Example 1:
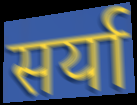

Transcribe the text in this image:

सर्या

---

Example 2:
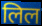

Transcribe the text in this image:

लिल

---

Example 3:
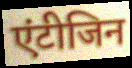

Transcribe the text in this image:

एंटीजिन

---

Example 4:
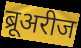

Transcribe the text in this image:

ब्रूअरीज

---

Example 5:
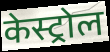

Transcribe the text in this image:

केस्ट्रोल